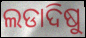
ଲଡାଦିଷୁ